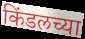
किंडलच्या